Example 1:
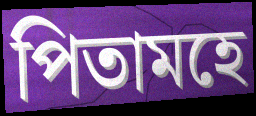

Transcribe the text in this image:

পিতামহে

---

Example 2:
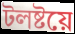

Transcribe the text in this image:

টলষ্টয়ে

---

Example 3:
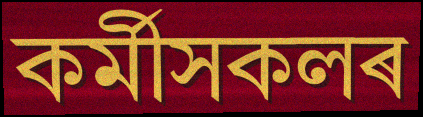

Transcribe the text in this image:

কৰ্মীসকলৰ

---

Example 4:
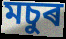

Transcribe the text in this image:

মচুৰ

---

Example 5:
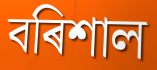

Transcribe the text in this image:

বৰিশাল